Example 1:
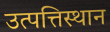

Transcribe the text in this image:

उत्पत्तिस्थान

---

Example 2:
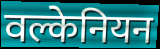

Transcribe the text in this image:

वल्केनियन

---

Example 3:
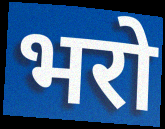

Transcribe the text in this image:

भरो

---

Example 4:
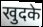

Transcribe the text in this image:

खुदके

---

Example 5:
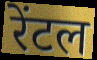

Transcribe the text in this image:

रेंटल